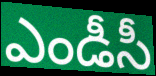
ఎండీసీ